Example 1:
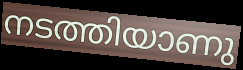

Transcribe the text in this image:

നടത്തിയാണു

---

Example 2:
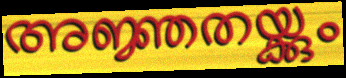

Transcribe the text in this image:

അജ്ഞതയ്ക്കും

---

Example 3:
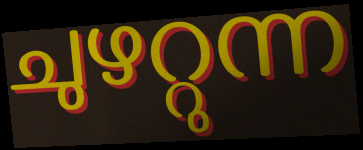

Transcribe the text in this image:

ചുഴറ്റുന്ന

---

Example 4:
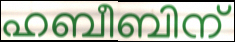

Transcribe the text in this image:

ഹബീബിന്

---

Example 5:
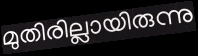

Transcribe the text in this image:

മുതിരില്ലായിരുന്നു